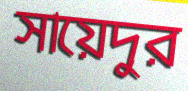
সায়েদুর